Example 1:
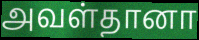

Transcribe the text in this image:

அவள்தானா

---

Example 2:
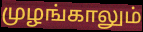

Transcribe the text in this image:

முழங்காலும்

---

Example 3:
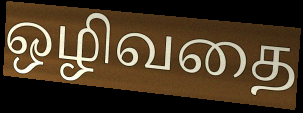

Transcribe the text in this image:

ஒழிவதை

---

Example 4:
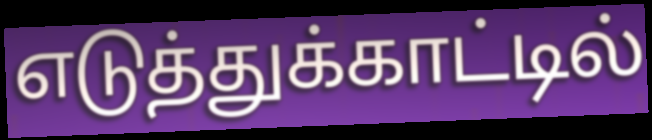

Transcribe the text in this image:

எடுத்துக்காட்டில்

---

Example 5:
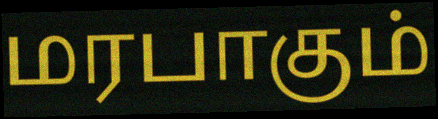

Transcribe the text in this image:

மரபாகும்